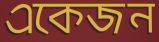
একেজন